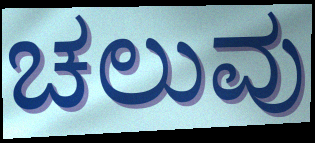
ಚಲುವು